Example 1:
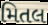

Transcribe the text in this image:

મિતલ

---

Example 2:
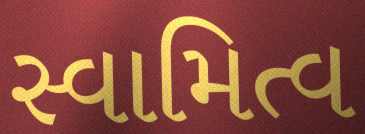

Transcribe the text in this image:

સ્વામિત્વ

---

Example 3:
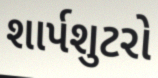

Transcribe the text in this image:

શાર્પશુટરો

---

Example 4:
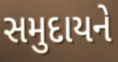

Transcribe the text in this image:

સમુદાયને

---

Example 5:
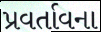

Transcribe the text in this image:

પ્રવર્તાવના